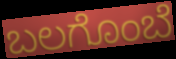
ಬಲಗೊಂಬೆ